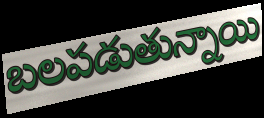
బలపడుతున్నాయి